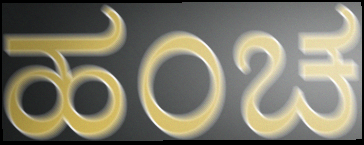
ಹಂಚ